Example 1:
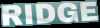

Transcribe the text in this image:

RIDGE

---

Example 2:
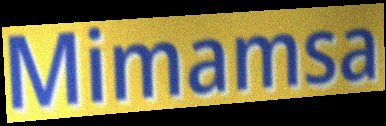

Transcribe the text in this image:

Mimamsa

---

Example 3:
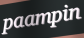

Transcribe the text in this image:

paampin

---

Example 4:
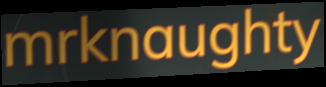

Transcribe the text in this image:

mrknaughty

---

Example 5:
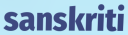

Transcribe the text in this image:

sanskriti